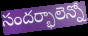
సందర్భాలెన్నో